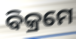
ବିକ୍ରମେ